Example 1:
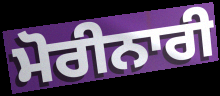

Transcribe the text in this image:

ਮੋਰੀਨਾਰੀ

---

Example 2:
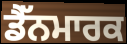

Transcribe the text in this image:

ਡੈੱਨਮਾਰਕ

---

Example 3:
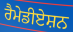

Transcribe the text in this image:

ਰੈਮੇਡੀਏਸ਼ਨ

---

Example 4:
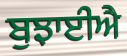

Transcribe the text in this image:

ਬੁਝਾਈਐ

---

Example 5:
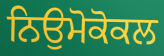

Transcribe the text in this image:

ਨਿਉਮੋਕੋਕਲ